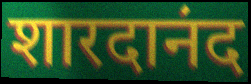
शारदानंद